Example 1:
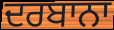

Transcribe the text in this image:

ਦਰਬਾਨਾ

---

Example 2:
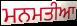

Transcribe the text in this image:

ਮਨਮਤੀਆ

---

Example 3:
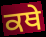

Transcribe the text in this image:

ਕਥੇ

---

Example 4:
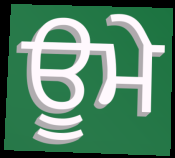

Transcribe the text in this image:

ਊਮੇ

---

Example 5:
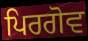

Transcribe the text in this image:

ਪਿਰਗੋਵ